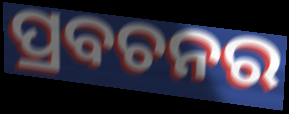
ପ୍ରବଚନର